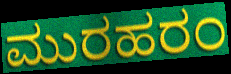
ಮುರಹರಂ